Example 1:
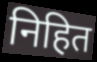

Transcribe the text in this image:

निहित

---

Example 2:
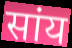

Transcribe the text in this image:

सांय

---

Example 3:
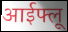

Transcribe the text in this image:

आईफ्लू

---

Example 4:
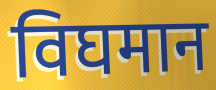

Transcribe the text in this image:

विघमान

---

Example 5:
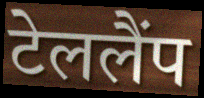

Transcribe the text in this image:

टेललैंप